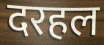
दरहल